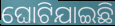
ଘୋଟିଯାଇଛି